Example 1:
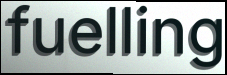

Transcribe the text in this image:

fuelling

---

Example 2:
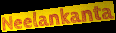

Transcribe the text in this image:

Neelankanta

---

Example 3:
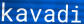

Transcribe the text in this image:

kavadi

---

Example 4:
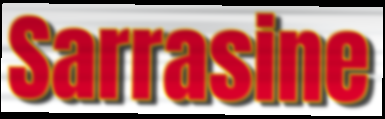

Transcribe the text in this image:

Sarrasine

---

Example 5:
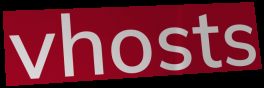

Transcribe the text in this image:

vhosts